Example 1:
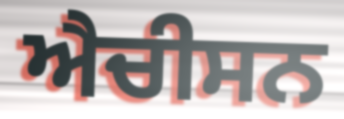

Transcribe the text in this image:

ਐਚੀਸਨ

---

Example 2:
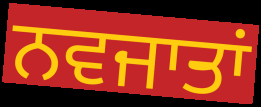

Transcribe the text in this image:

ਨਵਜਾਤਾਂ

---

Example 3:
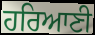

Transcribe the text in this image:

ਹਰਿਆਣੀ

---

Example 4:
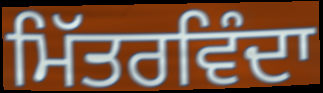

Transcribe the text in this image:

ਮਿੱਤਰਵਿੰਦਾ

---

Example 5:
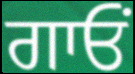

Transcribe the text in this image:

ਗਾਓਂ